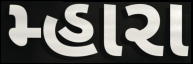
મ્હારા